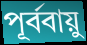
পূর্ববায়ু